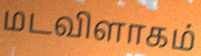
மடவிளாகம்